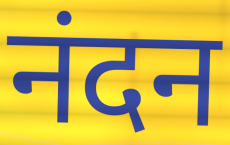
नंदन